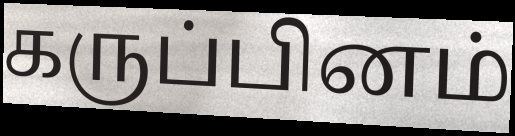
கருப்பினம்